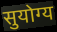
सुयोग्य